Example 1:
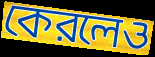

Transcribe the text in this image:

কেরলেও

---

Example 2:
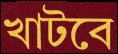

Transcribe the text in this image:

খাটবে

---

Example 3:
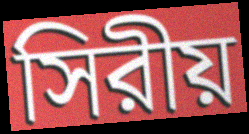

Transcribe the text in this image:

সিরীয়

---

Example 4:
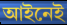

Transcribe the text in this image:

আইনেই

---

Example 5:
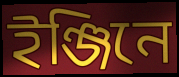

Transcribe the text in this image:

ইঞ্জিনে